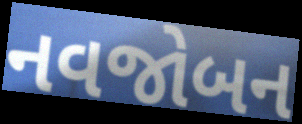
નવજોબન